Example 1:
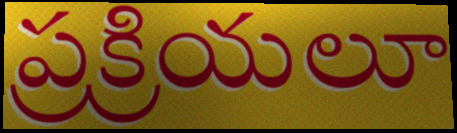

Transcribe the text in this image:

ప్రక్రియలూ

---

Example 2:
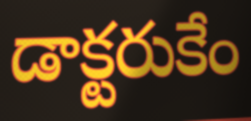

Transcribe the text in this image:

డాక్టరుకేం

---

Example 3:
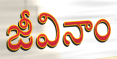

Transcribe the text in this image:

జీవినాం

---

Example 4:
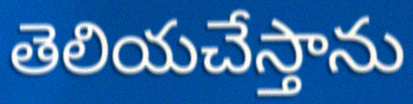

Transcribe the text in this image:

తెలియచేస్తాను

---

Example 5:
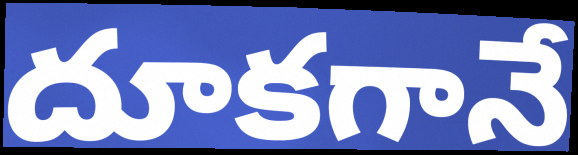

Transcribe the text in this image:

దూకగానే